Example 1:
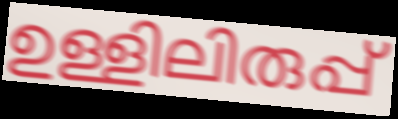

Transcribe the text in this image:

ഉള്ളിലിരുപ്പ്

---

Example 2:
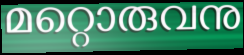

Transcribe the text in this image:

മറ്റൊരുവനു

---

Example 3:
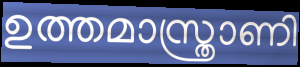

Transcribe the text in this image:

ഉത്തമാസ്ത്രാണി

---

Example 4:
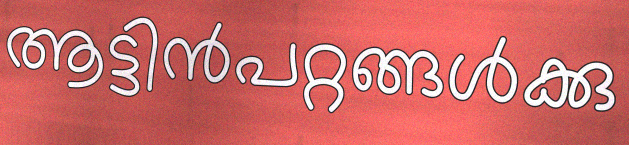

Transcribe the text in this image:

ആട്ടിൻപറ്റങ്ങൾക്കു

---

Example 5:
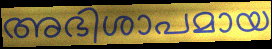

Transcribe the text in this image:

അഭിശാപമായ